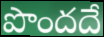
పొందదే